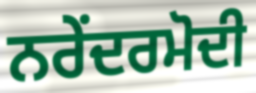
ਨਰੇਂਦਰਮੋਦੀ